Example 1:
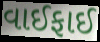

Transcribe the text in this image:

વાઈફાઈ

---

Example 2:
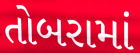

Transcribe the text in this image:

તોબરામાં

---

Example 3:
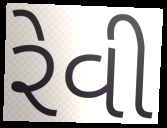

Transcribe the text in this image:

રેવી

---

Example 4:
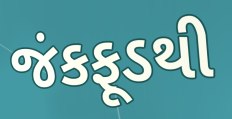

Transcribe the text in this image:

જંકફૂડથી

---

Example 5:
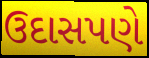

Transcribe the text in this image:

ઉદાસપણે